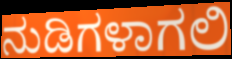
ನುಡಿಗಳಾಗಲಿ